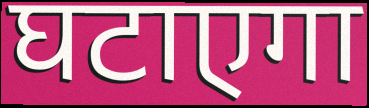
घटाएगा